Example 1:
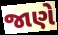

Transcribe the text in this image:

જાણે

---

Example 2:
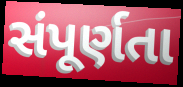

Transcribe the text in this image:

સંપૂર્ણતા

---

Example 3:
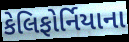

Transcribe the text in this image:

કેલિફોર્નિયાના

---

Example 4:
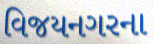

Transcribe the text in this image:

વિજયનગરના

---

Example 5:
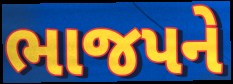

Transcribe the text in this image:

ભાજપને